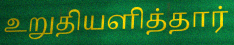
உறுதியளித்தார்